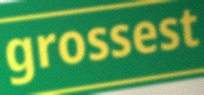
grossest